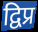
द्विप्र